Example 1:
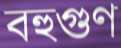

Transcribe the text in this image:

বহুগুণ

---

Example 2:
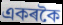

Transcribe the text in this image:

একৰকৈ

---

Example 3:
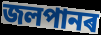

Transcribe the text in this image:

জলপানৰ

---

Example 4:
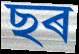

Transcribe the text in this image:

ছৰ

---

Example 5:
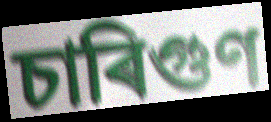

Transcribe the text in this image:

চাৰিগুণ